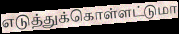
எடுத்துக்கொள்ளட்டுமா